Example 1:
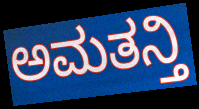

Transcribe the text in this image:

ಅಮತನ್ತಿ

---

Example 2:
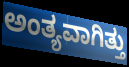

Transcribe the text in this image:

ಅಂತ್ಯವಾಗಿತ್ತು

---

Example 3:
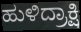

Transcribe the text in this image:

ಹುಳಿದ್ರಾಕ್ಷಿ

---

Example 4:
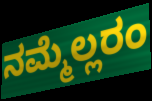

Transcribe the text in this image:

ನಮ್ಮೆಲ್ಲರಂ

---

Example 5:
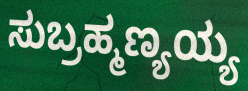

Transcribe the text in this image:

ಸುಬ್ರಹ್ಮಣ್ಯಯ್ಯ